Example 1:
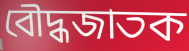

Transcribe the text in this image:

বৌদ্ধজাতক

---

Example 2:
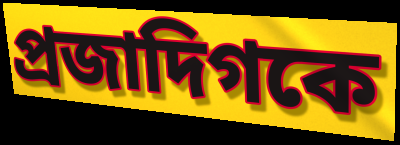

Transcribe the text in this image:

প্রজাদিগকে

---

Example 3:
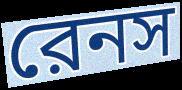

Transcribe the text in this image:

রেনস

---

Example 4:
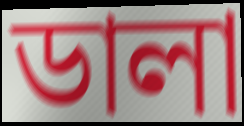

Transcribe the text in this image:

ডালা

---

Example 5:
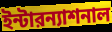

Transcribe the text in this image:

ইন্টারন্যাশনাল